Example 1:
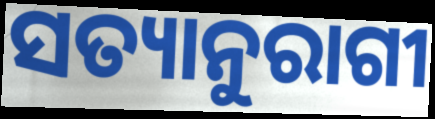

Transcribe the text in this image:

ସତ୍ୟାନୁରାଗୀ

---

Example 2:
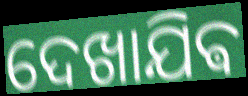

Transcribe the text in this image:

ଦେଖାଯିଵ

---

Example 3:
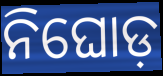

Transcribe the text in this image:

ନିଘୋଡ଼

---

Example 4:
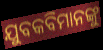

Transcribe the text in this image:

ଯୁବକବିମାନଙ୍କୁ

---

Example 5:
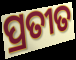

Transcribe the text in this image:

ପ୍ରତୀତ